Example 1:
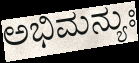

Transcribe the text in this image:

ಅಭಿಮನ್ಯುಃ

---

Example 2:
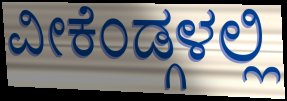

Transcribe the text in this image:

ವೀಕೆಂಡ್ಗಳಲ್ಲಿ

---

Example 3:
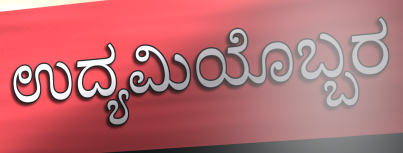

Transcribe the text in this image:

ಉದ್ಯಮಿಯೊಬ್ಬರ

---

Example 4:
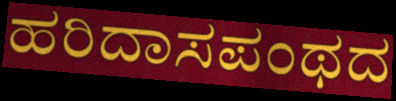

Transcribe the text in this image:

ಹರಿದಾಸಪಂಥದ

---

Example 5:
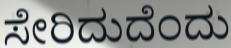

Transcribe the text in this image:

ಸೇರಿದುದೆಂದು